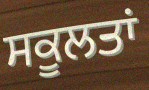
ਸਕੂਲਤਾਂ